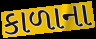
કાળાના